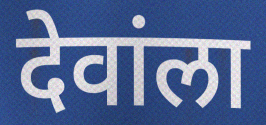
देवांला